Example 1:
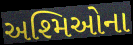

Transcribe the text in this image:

અશ્મિઓના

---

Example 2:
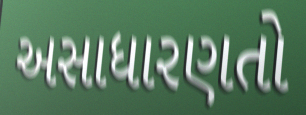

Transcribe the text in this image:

અસાધારણતો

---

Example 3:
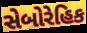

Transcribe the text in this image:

સેબોરેહિક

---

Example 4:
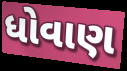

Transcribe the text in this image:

ધોવાણ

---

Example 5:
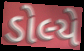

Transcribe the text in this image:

ડોલ્યે